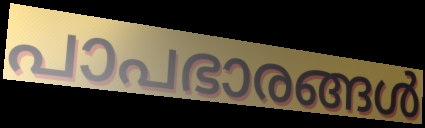
പാപഭാരങ്ങൾ